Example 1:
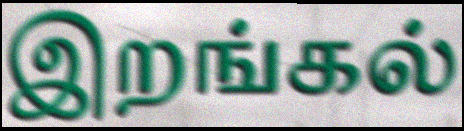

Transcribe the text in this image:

இறங்கல்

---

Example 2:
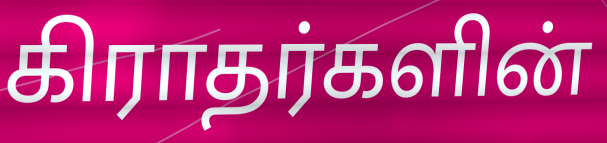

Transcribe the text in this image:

கிராதர்களின்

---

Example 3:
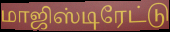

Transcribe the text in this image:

மாஜிஸ்டிரேட்டு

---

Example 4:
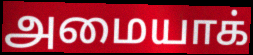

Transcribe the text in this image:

அமையாக்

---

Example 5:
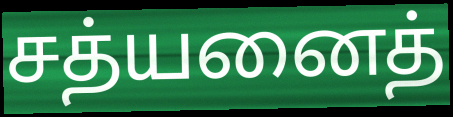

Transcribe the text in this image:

சத்யனைத்